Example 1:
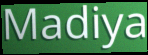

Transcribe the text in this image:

Madiya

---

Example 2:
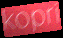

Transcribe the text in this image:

kopri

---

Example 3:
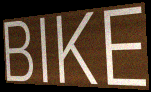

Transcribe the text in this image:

BIKE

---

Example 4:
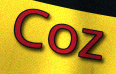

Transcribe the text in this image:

Coz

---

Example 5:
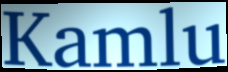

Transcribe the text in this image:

Kamlu